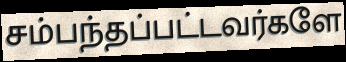
சம்பந்தப்பட்டவர்களே